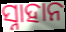
ସ୍ନାହାନ